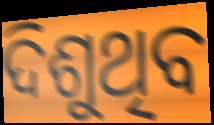
ଦିଶୁଥିବ